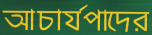
আচার্যপাদের